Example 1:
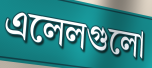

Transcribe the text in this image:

এলেলগুলো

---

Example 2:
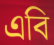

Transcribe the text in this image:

এবি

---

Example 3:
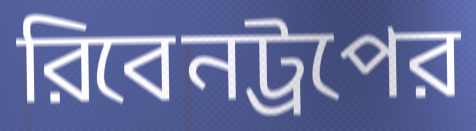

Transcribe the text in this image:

রিবেনট্রপের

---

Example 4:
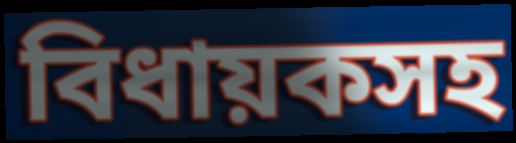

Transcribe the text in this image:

বিধায়কসহ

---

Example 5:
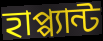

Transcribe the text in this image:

হাপ্প্যান্ট